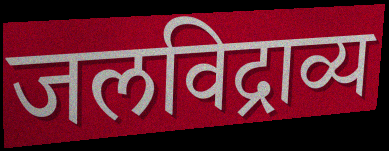
जलविद्राव्य